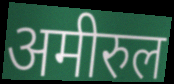
अमीरुल